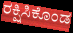
ರಕ್ಷಿಸಿಕೊಂಡ